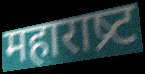
महाराष्र्ट